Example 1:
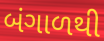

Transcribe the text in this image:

બંગાળથી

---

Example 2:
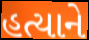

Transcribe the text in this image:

હત્યાને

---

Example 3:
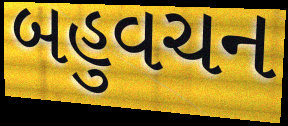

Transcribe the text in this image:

બહુવચન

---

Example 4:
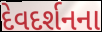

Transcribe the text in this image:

દેવદર્શનના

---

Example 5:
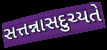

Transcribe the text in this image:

સત્તન્નાસદુચ્યતે